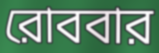
রোববার